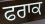
ਫਰਾਕ